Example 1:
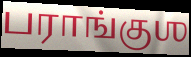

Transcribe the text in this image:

பராங்குஶ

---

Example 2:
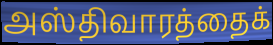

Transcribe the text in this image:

அஸ்திவாரத்தைக்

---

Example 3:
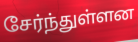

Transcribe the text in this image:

சேர்ந்துள்ளன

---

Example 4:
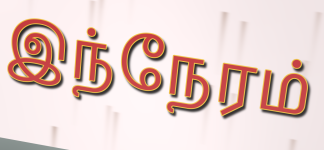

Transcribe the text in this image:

இந்நேரம்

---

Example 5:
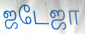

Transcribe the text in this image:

ஜடேஜா